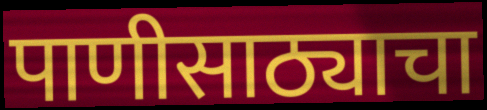
पाणीसाठ्याचा